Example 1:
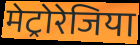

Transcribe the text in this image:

मेट्रोरेजिया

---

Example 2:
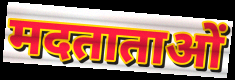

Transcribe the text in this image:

मदताताओं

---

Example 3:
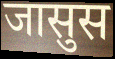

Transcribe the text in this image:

जासुस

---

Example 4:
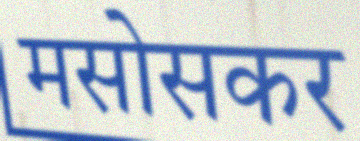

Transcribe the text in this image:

मसोसकर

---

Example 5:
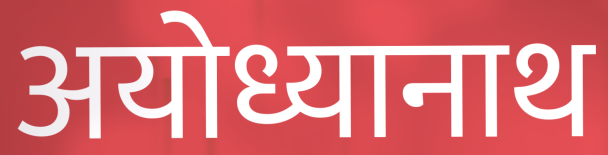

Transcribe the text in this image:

अयोध्यानाथ